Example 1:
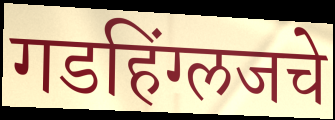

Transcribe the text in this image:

गडहिंग्लजचे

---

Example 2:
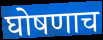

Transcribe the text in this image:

घोषणाच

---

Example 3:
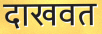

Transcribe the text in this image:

दाखवत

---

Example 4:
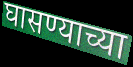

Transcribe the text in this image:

घासण्याच्या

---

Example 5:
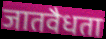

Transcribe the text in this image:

जातवैधता